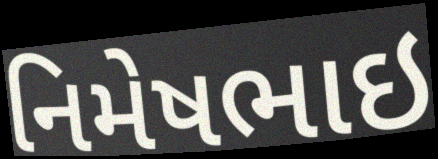
નિમેષભાઇ